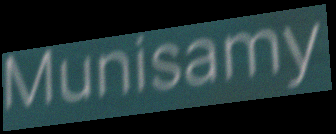
Munisamy